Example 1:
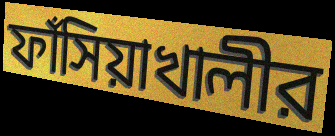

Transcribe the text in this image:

ফাঁসিয়াখালীর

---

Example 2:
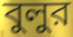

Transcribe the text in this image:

বুলুর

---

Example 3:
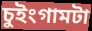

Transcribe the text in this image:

চুইংগামটা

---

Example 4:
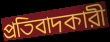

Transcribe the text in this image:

প্রতিবাদকারী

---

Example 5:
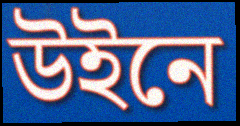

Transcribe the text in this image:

উইনে